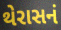
થેરાસનં